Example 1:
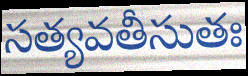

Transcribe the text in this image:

సత్యవతీసుతః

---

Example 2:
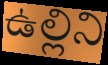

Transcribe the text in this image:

ఉల్లిని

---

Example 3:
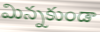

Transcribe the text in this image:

మిన్నకుండా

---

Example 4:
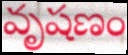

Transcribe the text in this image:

వృషణం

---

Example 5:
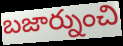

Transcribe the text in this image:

బజార్నుంచి